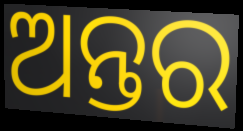
ଅନ୍ତର